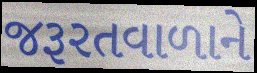
જરૂરતવાળાને